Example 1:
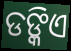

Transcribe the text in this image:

ଡଙ୍କିଏ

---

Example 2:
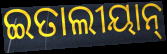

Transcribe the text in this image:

ଇତାଲୀୟାନ୍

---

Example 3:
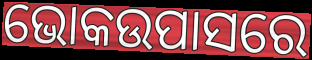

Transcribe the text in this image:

ଭୋକଉପାସରେ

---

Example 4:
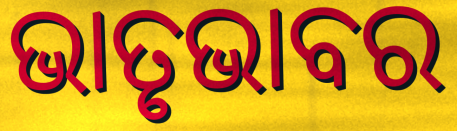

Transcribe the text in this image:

ଭାତୃଭାବର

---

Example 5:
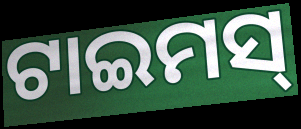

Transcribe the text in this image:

ଟାଇମସ୍